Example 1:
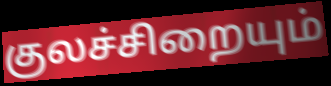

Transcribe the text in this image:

குலச்சிறையும்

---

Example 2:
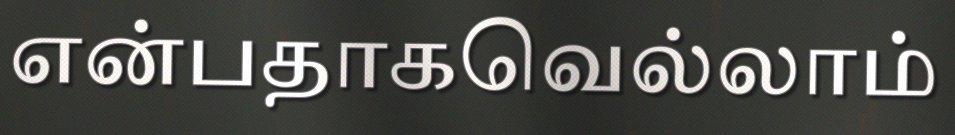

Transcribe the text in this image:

என்பதாகவெல்லாம்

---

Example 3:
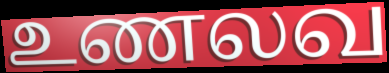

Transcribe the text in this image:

உணலவ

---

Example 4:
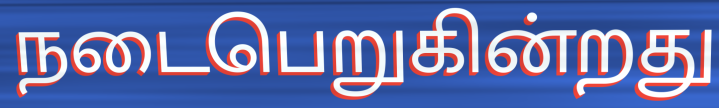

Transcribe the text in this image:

நடைபெறுகின்றது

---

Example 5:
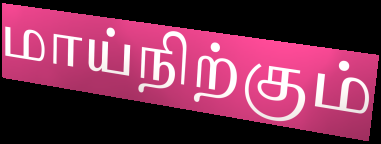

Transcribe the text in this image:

மாய்நிற்கும்